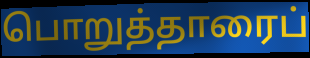
பொறுத்தாரைப்